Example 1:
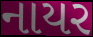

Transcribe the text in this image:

નાયર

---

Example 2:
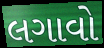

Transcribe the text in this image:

લગાવો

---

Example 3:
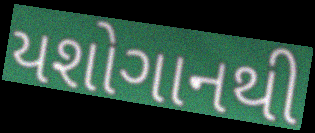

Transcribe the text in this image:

યશોગાનથી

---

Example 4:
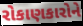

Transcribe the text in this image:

રોકાણકારોને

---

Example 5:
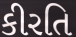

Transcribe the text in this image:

કીરતિ